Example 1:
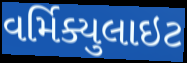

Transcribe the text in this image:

વર્મિક્યુલાઇટ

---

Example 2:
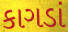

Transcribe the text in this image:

કાગડાં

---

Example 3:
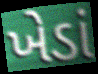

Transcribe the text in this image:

ખેડાં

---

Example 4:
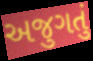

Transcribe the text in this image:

અજુગતું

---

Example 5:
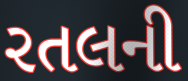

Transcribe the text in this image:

રતલની